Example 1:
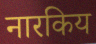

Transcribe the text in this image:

नारकिय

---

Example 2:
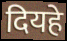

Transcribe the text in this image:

दियहे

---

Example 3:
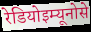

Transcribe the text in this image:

रेडियोइम्यूनोसे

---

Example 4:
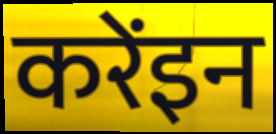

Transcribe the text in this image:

करेंइन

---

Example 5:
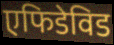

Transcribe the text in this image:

एफिडेविड